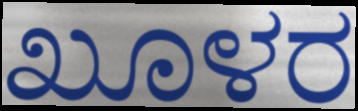
ಖೂಳರ